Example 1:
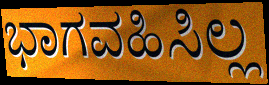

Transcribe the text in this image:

ಭಾಗವಹಿಸಿಲ್ಲ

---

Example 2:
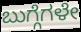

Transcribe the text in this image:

ಬುಗ್ಗೆಗಳೇ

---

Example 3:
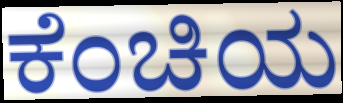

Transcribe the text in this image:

ಕೆಂಚಿಯ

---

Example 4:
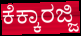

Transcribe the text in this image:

ಕೆಕ್ಕಾರಜ್ಜಿ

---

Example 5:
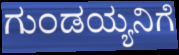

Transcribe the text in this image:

ಗುಂಡಯ್ಯನಿಗೆ